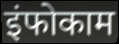
इंफोकाम